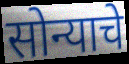
सोन्याचे